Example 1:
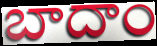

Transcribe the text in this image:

బాదాం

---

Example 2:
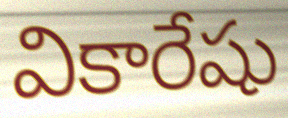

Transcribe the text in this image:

వికారేషు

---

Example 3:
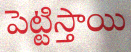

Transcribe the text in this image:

పెట్టిస్తాయి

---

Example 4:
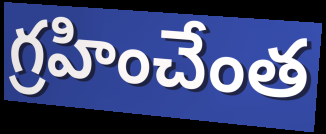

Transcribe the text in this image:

గ్రహించేంత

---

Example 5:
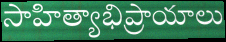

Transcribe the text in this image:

సాహిత్యాభిప్రాయాలు